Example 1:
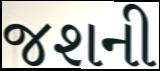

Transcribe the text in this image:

જશની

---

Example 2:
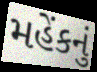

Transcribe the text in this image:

મહેંકનું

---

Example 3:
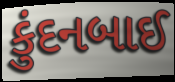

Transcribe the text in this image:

કુંદનબાઈ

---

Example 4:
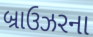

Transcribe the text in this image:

બ્રાઉઝરના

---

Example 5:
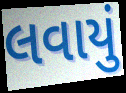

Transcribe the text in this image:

લવાયું